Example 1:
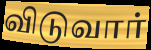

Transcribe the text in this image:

விடுவார்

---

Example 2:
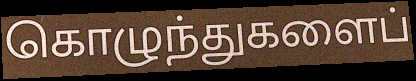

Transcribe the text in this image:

கொழுந்துகளைப்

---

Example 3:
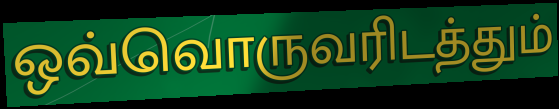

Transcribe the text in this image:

ஒவ்வொருவரிடத்தும்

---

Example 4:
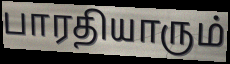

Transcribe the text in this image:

பாரதியாரும்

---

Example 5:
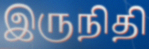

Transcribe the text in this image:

இருநிதி